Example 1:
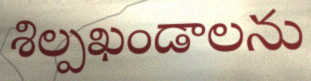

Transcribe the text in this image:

శిల్పఖండాలను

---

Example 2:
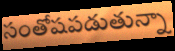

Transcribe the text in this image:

సంతోషపడుతున్నా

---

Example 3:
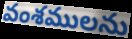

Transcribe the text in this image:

వంశములను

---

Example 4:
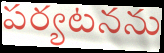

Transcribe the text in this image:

పర్యటనను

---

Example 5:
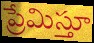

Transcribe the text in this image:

ప్రేమిస్తూ